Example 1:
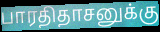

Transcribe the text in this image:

பாரதிதாசனுக்கு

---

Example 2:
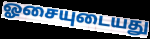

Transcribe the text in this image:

ஓசையுடையது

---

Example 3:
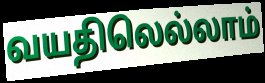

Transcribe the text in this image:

வயதிலெல்லாம்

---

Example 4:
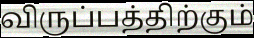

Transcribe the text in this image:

விருப்பத்திற்கும்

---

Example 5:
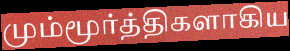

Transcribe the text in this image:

மும்மூர்த்திகளாகிய